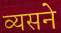
व्यसने